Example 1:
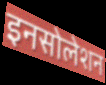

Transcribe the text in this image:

इनसोलेशन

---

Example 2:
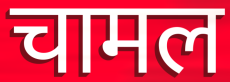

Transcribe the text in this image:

चामल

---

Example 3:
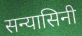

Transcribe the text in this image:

सन्यासिनी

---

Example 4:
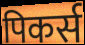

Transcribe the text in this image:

पिकर्स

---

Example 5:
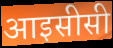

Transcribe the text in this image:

आइसीसी